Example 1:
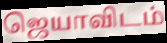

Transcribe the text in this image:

ஜெயாவிடம்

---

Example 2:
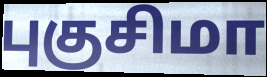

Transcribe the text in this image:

புகுசிமா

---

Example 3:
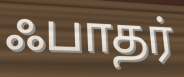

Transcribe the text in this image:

ஃபாதர்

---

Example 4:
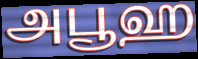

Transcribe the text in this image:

அபூஹ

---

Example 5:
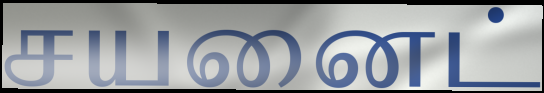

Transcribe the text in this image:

சயனைட்